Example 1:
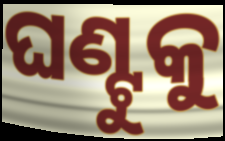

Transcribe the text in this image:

ଘଣ୍ଟୁକୁ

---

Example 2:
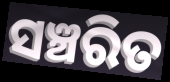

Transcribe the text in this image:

ସଞ୍ଚରିତ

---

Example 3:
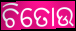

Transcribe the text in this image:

ଚିତୋଉ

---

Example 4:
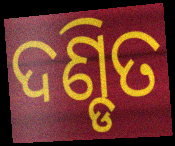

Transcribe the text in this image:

ଦଣ୍ଡିତ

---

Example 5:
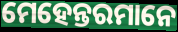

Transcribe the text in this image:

ମେହେନ୍ତରମାନେ